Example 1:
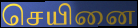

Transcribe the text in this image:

செயினை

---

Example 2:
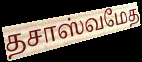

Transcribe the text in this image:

தசாஸ்வமேத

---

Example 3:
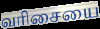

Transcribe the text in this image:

வரிசையை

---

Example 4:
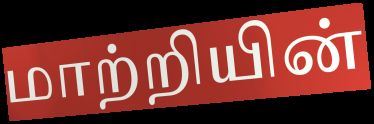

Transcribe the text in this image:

மாற்றியின்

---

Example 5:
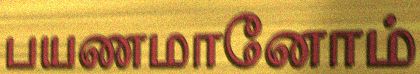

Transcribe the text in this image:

பயணமானோம்